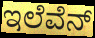
ಇಲೆವೆನ್